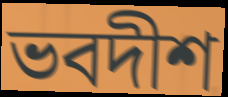
ভবদীশ